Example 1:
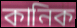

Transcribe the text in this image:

কানিক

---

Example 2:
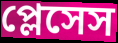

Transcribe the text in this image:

প্লেসেস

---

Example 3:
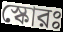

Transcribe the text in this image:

স্কোরঃ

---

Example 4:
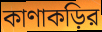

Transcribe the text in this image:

কাণাকড়ির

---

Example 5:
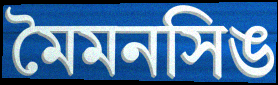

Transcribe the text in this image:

মৈমনসিঙ